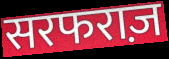
सरफराज़